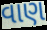
વાણ